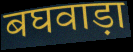
बघवाड़ा